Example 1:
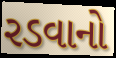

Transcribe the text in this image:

રડવાનો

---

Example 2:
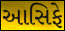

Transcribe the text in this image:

આસિફે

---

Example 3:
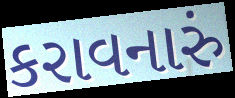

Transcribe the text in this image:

કરાવનારું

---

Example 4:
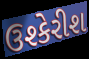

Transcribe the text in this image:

ઉશ્કેરીશ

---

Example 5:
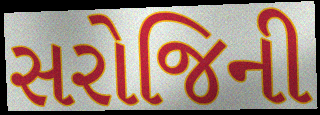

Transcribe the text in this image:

સરોજિની